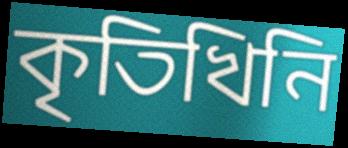
কৃতিখিনি